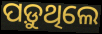
ପଡ଼ୁଥିଲେ